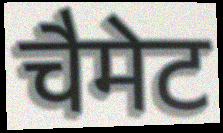
चैमेट